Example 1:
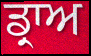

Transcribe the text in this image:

ਡ੍ਰਾਅ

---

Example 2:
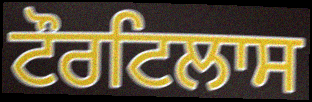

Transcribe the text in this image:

ਟੌਰਟਿਲਾਸ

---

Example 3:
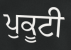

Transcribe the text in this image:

ਪੁਕੂਟੀ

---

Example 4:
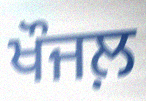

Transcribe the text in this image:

ਖੌਜਲ਼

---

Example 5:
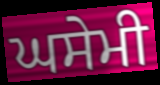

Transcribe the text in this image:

ਘਸੇਮੀ